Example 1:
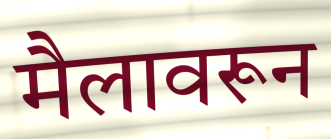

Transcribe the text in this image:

मैलावरून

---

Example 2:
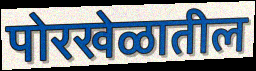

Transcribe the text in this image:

पोरखेळातील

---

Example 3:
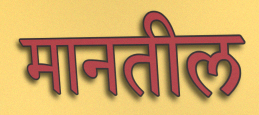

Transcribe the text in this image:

मानतील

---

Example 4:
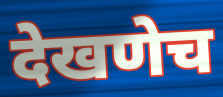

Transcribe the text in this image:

देखणेच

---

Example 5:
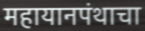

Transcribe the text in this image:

महायानपंथाचा